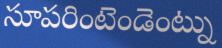
సూపరింటెండెంట్ను